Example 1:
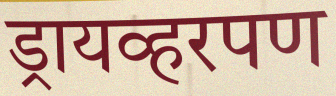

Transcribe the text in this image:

ड्रायव्हरपण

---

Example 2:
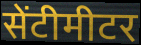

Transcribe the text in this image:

सेंटीमीटर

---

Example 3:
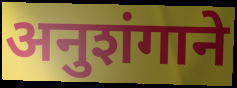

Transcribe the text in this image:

अनुशंगाने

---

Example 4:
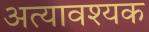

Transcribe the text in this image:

अत्यावश्‍यक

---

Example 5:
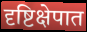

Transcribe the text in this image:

दृष्टिक्षेपात